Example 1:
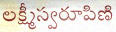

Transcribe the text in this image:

లక్ష్మీస్వరూపిణి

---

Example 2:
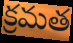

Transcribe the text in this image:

క్రమత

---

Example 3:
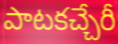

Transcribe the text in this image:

పాటకచ్చేరీ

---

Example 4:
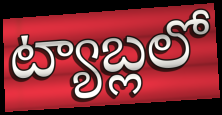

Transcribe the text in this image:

ట్యాబ్లలో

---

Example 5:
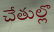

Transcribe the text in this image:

చేతుల్లొ